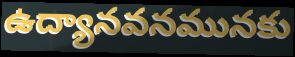
ఉద్యానవనమునకు